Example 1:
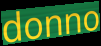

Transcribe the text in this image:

donno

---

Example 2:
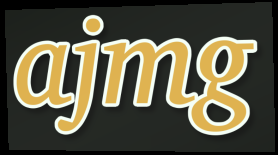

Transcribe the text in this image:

ajmg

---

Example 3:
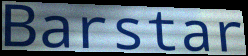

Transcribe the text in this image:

Barstar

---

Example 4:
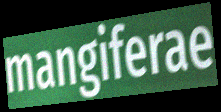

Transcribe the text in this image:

mangiferae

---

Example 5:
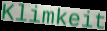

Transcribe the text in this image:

Klimkeit